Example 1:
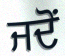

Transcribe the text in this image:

ਜਦੋਂ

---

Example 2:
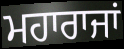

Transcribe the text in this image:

ਮਹਾਰਾਜਾਂ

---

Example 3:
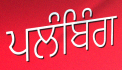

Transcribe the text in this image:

ਪਲੰਬਿੰਗ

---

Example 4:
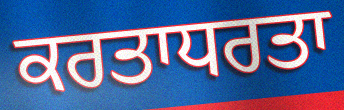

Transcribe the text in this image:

ਕਰਤਾਧਰਤਾ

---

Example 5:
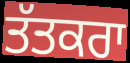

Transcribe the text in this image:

ਤੱਤਕਰਾ